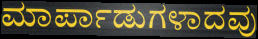
ಮಾರ್ಪಾಡುಗಳಾದವು